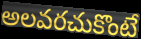
అలవరచుకొంటే